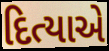
દિત્યાએ